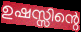
ഉഷസ്സിന്റെ